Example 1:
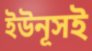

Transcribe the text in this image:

ইউনূসই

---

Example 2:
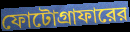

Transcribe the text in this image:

ফোটোগ্রাফারের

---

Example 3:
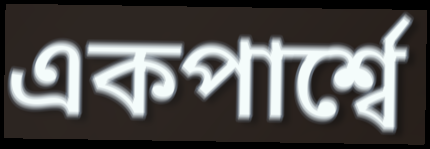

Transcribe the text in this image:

একপার্শ্বে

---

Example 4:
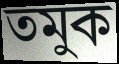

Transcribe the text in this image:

তমুক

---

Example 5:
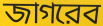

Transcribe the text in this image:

জাগরেব